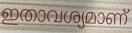
ഇതാവശ്യമാണ്